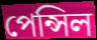
পেন্সিল